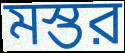
মস্তর